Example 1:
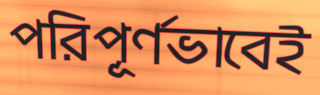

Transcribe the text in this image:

পরিপূর্ণভাবেই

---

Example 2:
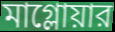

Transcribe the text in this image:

মাগ্লোয়ার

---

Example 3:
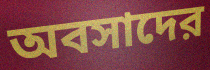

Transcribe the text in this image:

অবসাদের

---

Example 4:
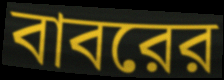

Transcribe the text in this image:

বাবরের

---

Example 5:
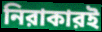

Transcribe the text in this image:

নিরাকারই